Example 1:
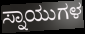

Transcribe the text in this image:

ಸ್ನಾಯುಗಳ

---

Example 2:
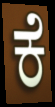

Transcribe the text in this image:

ಕೆ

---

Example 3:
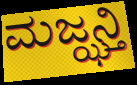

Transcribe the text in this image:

ಮಜ್ಝನ್ತಿ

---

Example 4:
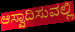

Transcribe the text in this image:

ಆಸ್ವಾದಿಸುವಲ್ಲಿ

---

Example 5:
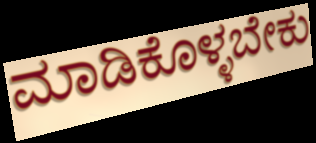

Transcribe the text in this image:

ಮಾಡಿಕೊಳ್ಳಬೇಕು